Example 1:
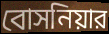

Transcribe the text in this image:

বোসনিয়ার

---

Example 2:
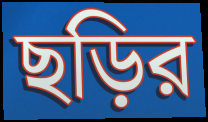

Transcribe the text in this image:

ছড়ির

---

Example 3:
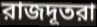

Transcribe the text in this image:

রাজদূতরা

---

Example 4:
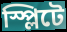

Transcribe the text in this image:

স্প্লিটে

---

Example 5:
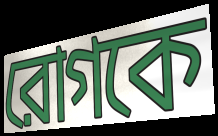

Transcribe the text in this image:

রোগকে